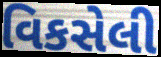
વિકસેલી